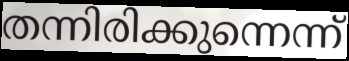
തന്നിരിക്കുന്നെന്ന്